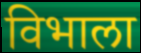
विभाला